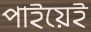
পাইয়েই